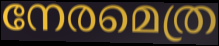
നേരമെത്ര